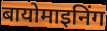
बायोमाइनिंग